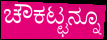
ಚೌಕಟ್ಟನ್ನೂ